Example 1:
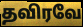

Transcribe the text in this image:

தவிரவே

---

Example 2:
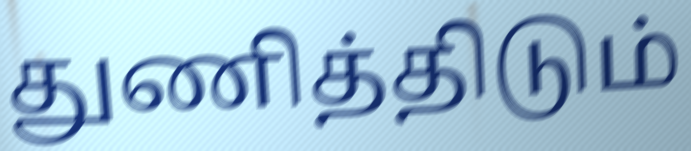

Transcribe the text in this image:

துணித்திடும்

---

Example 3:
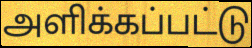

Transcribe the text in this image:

அளிக்கப்பட்டு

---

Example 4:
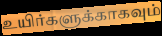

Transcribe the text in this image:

உயிர்களுக்காகவும்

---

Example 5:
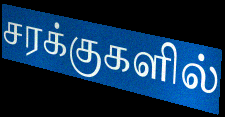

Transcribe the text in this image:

சரக்குகளில்